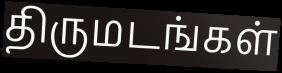
திருமடங்கள்